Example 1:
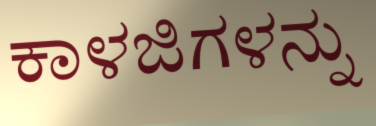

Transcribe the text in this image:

ಕಾಳಜಿಗಳನ್ನು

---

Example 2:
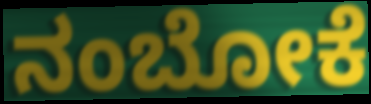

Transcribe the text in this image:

ನಂಬೋಕೆ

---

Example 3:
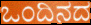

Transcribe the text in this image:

ಒಂದಿನದ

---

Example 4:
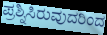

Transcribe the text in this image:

ಪ್ರಶ್ನಿಸಿರುವುದರಿಂದ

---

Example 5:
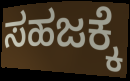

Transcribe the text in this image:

ಸಹಜಕ್ಕೆ